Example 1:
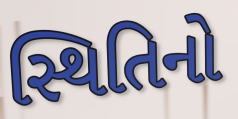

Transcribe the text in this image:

સ્થિતિનો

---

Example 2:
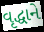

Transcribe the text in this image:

વૃદ્ધાને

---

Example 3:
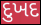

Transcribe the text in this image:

દુખદ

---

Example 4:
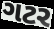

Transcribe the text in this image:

ગટર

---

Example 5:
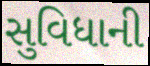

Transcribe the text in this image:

સુવિધાની